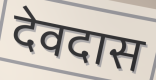
देवदास